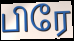
பிரே